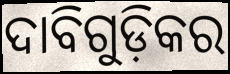
ଦାବିଗୁଡ଼ିକର